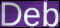
Deb